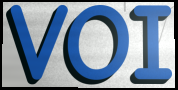
VOI